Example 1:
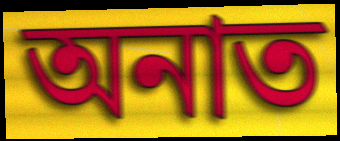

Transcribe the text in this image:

অনাত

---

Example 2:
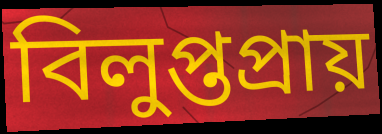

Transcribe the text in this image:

বিলুপ্তপ্ৰায়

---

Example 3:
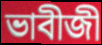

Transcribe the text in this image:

ভাবীজী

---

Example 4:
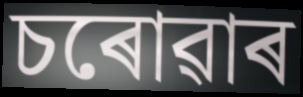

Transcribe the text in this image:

চৰোৱাৰ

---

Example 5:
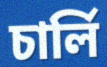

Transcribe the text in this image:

চাৰ্লি